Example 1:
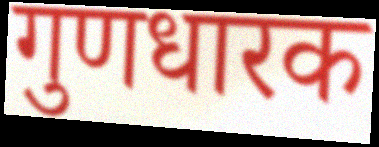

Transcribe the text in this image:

गुणधारक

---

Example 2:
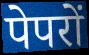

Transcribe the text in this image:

पेपरों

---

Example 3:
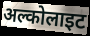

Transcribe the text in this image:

अल्कोलाइट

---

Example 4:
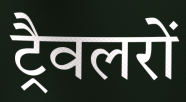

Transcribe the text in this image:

ट्रैवलरों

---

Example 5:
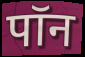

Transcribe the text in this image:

पॉन